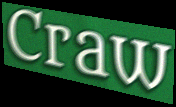
Craw